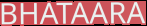
BHATAARA